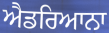
ਐਡਰਿਆਨਾ